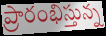
ప్రారంభిస్తున్న